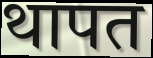
थापत